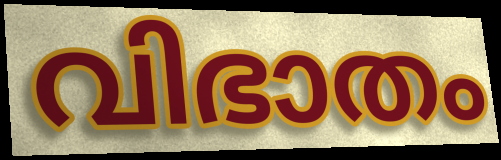
വിഭാതം